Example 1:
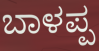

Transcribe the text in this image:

ಬಾಳಪ್ಪ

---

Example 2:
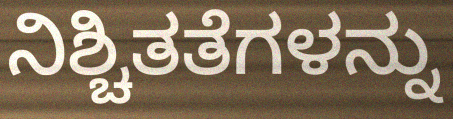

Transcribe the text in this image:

ನಿಶ್ಚಿತತೆಗಳನ್ನು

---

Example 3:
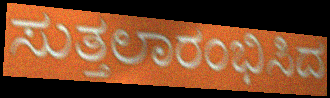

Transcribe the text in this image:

ಸುತ್ತಲಾರಂಭಿಸಿದ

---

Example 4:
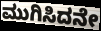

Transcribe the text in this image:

ಮುಗಿಸಿದನೇ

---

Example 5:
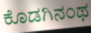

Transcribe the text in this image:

ಕೊಡಗಿನಂಥ